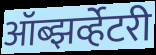
ऑब्झर्व्हेटरी